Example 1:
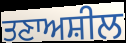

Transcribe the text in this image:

ਤਣਾਅਸ਼ੀਲ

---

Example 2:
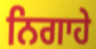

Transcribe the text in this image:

ਨਿਗਾਹੇ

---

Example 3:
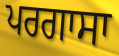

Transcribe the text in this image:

ਪਰਗਾਸਾ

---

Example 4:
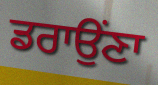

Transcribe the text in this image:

ਡਰਾਉਂਣਾ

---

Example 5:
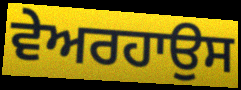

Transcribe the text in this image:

ਵੇਅਰਹਾਉਸ